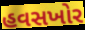
હવસખોર